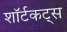
शॉर्टकट्स